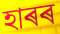
হাৰৰ